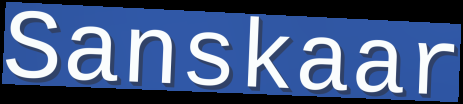
Sanskaar